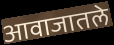
आवाजातले